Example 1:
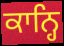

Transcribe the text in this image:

ਕਾਨ੍ਹਿ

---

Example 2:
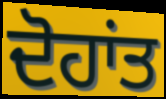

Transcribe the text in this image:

ਦੋਹਾਂਤ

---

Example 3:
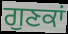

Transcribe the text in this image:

ਗੁਣਕਾਂ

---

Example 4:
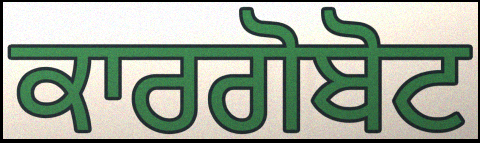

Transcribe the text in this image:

ਕਾਰਗੋਬੋਟ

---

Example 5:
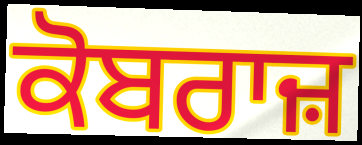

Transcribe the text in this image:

ਕੋਬਰਾਜ਼